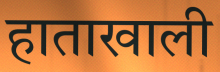
हाताखाली